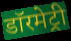
डॉरमेट्री